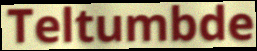
Teltumbde